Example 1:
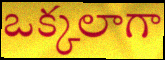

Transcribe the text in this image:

ఒక్కలాగా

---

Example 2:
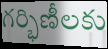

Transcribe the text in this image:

గర్భిణీలకు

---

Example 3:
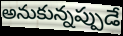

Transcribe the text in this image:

అనుకున్నప్పుడే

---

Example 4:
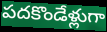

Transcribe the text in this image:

పదకొండేళ్లుగా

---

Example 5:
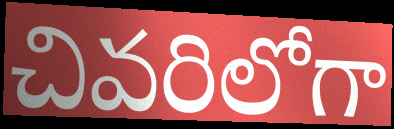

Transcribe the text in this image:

చివరిలోగా